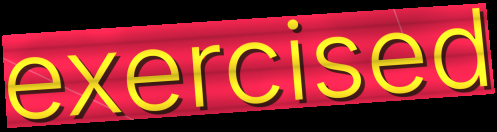
exercised